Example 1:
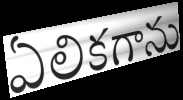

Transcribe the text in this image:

ఏలికగాను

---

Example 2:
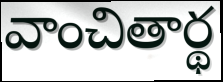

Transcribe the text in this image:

వాంచితార్థ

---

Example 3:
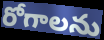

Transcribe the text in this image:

రోగాలను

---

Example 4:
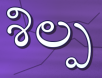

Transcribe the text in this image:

శిల్ప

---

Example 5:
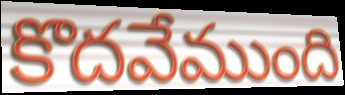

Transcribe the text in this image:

కొదవేముంది